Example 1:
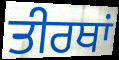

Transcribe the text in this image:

ਤੀਰਥਾਂ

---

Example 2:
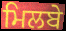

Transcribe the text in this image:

ਮਿਲਬੇ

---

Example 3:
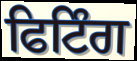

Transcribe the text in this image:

ਫਿਟਿੰਗ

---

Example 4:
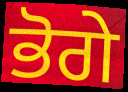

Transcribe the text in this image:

ਭੋਗੇ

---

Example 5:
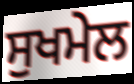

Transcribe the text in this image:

ਸੁਖਮੇਲ